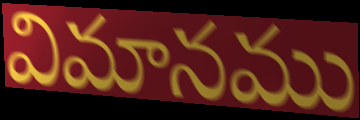
విమానము